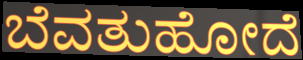
ಬೆವತುಹೋದೆ